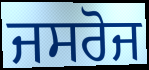
ਜਸਰੋਜ